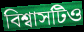
বিশ্বাসটিও